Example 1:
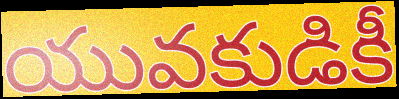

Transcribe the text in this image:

యువకుడికీ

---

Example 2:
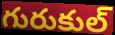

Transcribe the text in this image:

గురుకుల్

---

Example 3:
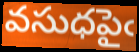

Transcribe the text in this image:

వసుధపైఁ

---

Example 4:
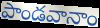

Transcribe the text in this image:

పాండవానాం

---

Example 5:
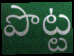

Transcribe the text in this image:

పొట్ట